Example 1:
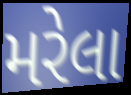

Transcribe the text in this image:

મરેલા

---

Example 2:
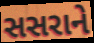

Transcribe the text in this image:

સસરાને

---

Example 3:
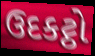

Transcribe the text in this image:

ઉદકટ્ઠો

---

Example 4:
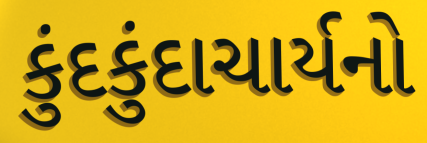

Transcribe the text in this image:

કુંદકુંદાચાર્યનો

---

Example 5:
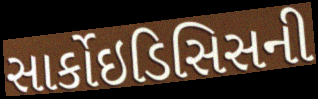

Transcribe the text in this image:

સાર્કોઇડિસિસની